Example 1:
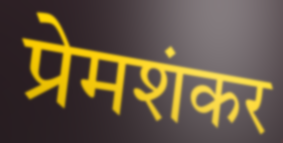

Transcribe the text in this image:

प्रेमशंकर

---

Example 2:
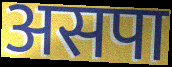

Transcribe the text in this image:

असपा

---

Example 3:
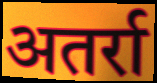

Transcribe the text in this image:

अतर्रा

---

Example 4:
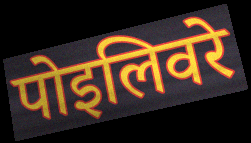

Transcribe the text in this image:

पोइलिवरे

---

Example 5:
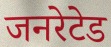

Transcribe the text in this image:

जनरेटेड